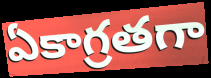
ఏకాగ్రతగా